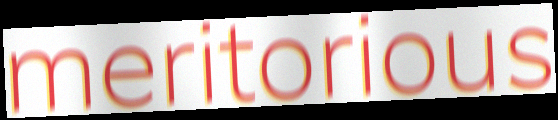
meritorious